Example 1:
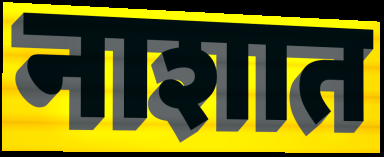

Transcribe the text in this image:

नाशात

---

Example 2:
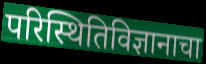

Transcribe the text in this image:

परिस्थितिविज्ञानाचा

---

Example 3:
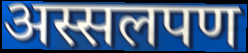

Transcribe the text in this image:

अस्सलपण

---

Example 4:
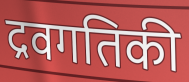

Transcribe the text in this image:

द्रवगतिकी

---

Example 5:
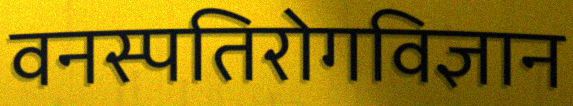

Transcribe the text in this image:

वनस्पतिरोगविज्ञान